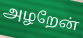
அழறேன்